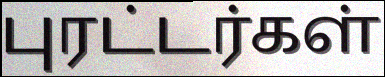
புரட்டர்கள்